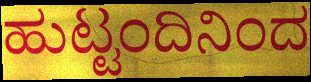
ಹುಟ್ಟಂದಿನಿಂದ